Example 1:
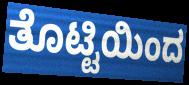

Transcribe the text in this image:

ತೊಟ್ಟಿಯಿಂದ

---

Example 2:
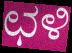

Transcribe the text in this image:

ಛಳಿ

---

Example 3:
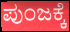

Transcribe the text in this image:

ಪುಂಜಕ್ಕೆ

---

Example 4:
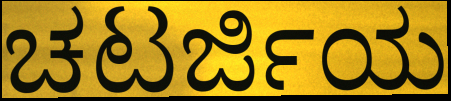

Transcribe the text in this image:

ಚಟರ್ಜಿಯ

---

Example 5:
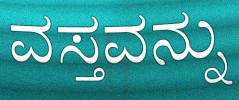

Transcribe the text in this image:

ವಸ್ತವನ್ನು